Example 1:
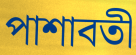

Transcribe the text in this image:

পাশাবতী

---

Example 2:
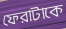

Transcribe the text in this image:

ফেরাটাকে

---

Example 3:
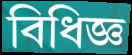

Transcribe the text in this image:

বিধিজ্ঞ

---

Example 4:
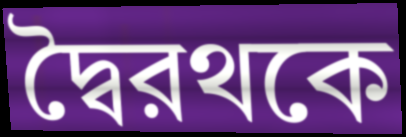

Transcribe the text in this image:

দ্বৈরথকে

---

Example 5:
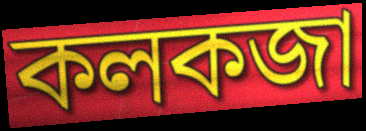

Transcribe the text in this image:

কলকজা